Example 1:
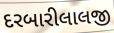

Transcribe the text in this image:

દરબારીલાલજી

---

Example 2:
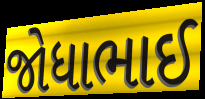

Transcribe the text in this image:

જોધાભાઈ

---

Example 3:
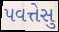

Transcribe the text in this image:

પવત્તેસુ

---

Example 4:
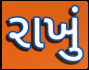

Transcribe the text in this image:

રાખું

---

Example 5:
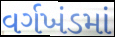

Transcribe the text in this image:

વર્ગખંડમાં